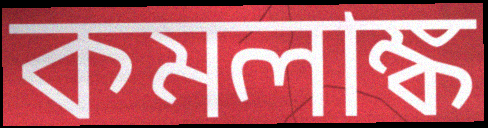
কমলাঙ্ক